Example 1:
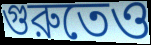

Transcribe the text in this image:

গুরুতেও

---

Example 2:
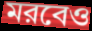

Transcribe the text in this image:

মরবেও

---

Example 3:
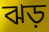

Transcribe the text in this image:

ঝড়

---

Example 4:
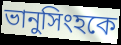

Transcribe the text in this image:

ভানুসিংহকে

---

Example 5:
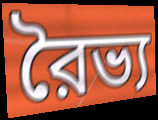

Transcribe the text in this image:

রৈভ্য